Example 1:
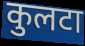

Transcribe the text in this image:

कुलटा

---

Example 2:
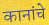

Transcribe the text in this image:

कानांचे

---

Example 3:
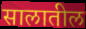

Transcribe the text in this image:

सालातील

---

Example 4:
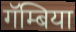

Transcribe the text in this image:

गॅम्बिया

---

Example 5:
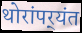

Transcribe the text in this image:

थोरांपर्यंत